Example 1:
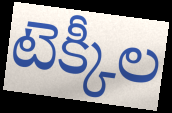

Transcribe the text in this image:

టెక్కీల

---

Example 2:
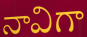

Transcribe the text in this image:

నావిగా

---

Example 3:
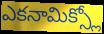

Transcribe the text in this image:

ఎకనామిక్స్లో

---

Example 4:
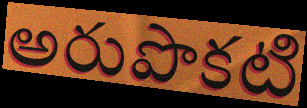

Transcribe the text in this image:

అరుపొకటి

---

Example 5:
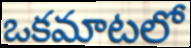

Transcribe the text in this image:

ఒకమాటలో